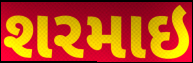
શરમાઇ